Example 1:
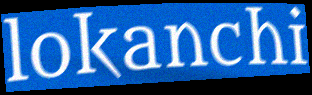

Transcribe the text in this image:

lokanchi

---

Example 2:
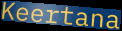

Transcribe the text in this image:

Keertana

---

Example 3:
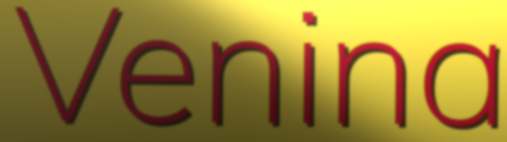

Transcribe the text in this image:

Venina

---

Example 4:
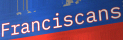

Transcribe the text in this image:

Franciscans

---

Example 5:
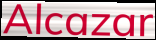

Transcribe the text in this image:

Alcazar